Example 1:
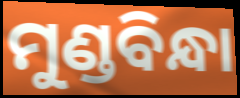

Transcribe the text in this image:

ମୁଣ୍ଡବିନ୍ଧା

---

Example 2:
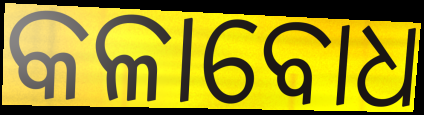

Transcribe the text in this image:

କଳାବୋଧ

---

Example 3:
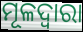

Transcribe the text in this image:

ମୂଳଦ୍ଵାରା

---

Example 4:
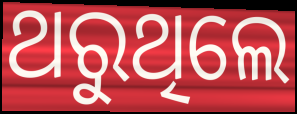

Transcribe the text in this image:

ଥରୁଥିଲେ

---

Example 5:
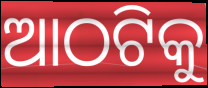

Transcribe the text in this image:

ଆଠଟିକୁ